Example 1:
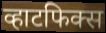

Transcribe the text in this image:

व्हाटफिक्स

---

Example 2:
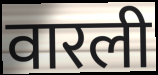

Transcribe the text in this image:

वारली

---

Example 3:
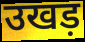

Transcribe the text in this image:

उखड़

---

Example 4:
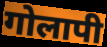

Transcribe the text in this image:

गोलापी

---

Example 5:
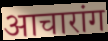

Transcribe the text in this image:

आचारांग